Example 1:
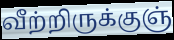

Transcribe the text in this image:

வீற்றிருக்குஞ்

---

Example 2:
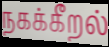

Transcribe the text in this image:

நகக்கீறல்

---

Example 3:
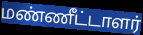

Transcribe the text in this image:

மண்ணீட்டாளர்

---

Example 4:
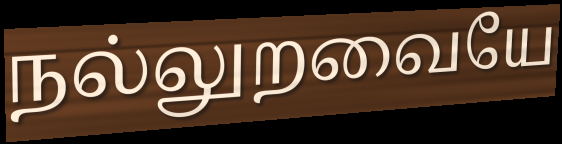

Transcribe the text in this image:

நல்லுறவையே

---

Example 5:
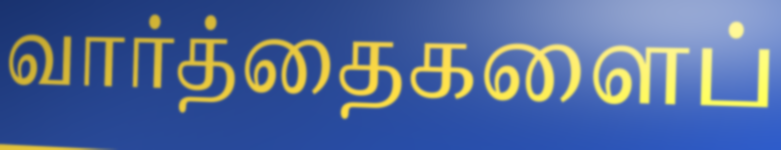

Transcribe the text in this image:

வார்த்தைகளைப்